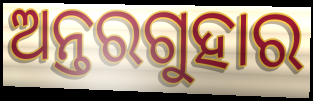
ଅନ୍ତରଗୁହାର